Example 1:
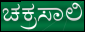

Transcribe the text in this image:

ಚಕ್ರಸಾಲಿ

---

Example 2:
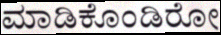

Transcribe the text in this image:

ಮಾಡಿಕೊಂಡಿರೋ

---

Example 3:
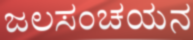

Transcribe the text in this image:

ಜಲಸಂಚಯನ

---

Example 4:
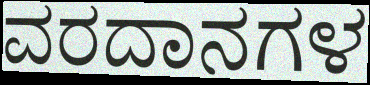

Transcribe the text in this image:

ವರದಾನಗಳ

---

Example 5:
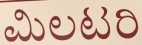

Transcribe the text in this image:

ಮಿಲಟರಿ